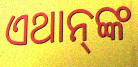
ଏଥାନ୍‍ଙ୍କ